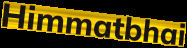
Himmatbhai